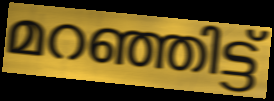
മറഞ്ഞിട്ട്